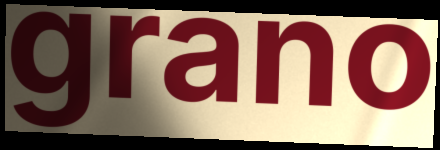
grano